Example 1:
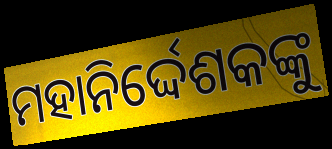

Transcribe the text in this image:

ମହାନିର୍ଦ୍ଦେଶକଙ୍କୁ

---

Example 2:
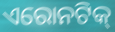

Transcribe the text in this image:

ଏରୋନଟିକ୍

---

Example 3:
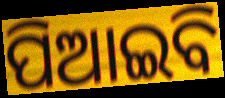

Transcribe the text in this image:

ପିଆଇବି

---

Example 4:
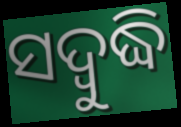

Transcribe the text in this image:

ସଦ୍ବୁଦ୍ଧି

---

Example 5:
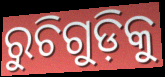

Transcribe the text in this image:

ରୁଚିଗୁଡ଼ିକୁ